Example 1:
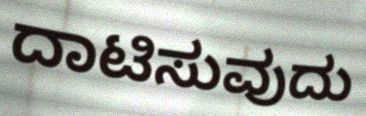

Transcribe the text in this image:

ದಾಟಿಸುವುದು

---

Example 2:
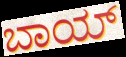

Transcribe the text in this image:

ಬಾಯ್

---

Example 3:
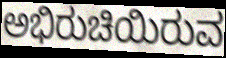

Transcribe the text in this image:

ಅಭಿರುಚಿಯಿರುವ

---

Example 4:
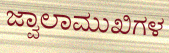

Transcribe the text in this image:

ಜ್ವಾಲಾಮುಖಿಗಳ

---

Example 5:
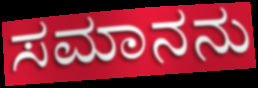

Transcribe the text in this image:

ಸಮಾನನು